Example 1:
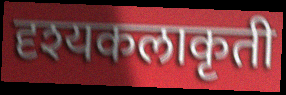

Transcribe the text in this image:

दृश्यकलाकृती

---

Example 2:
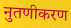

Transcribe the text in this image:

नुतणीकरण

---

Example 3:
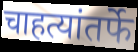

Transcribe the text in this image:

चाहत्यांतर्फे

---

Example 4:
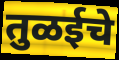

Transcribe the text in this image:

तुळईचे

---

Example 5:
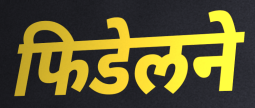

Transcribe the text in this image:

फिडेलने